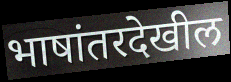
भाषांतरदेखील